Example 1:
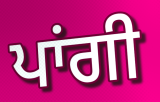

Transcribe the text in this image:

ਪਾਂਗੀ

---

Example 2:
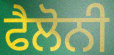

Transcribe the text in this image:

ਫੈਲੋਨੀ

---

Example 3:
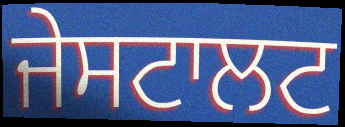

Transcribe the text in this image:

ਜੇਸਟਾਲਟ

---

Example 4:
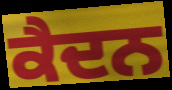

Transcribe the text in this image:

ਕੈਦਨ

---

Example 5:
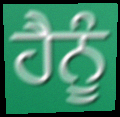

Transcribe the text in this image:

ਹੈਨੂੰ